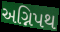
અગ્નિપથ